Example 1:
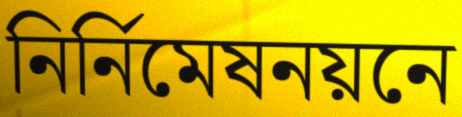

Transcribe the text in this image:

নির্নিমেষনয়নে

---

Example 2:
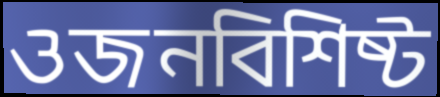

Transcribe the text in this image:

ওজনবিশিষ্ট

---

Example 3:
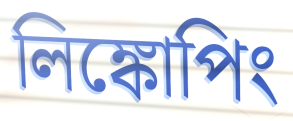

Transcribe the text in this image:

লিঙ্কোপিং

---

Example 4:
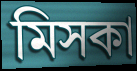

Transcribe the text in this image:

মিসকা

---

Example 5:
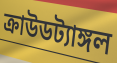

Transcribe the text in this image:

ক্রাউডট্যাঙ্গল